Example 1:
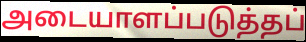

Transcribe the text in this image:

அடையாளப்படுத்தப்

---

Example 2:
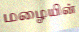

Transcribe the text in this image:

மழையின்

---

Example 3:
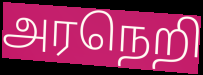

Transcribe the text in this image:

அரநெறி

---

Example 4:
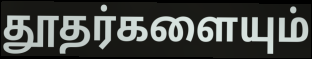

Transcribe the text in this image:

தூதர்களையும்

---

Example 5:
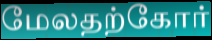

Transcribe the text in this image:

மேலதற்கோர்